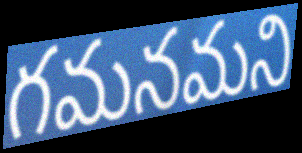
గమనమని